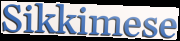
Sikkimese